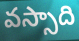
వస్సాది